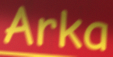
Arka